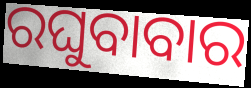
ରଘୁବାବାର